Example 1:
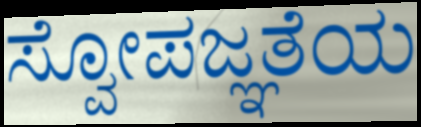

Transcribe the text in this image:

ಸ್ವೋಪಜ್ಞತೆಯ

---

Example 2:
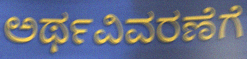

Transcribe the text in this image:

ಅರ್ಥವಿವರಣೆಗೆ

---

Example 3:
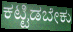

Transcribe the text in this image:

ಕಟ್ಟಿಡಬೇಕು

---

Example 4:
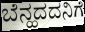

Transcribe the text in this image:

ಬೆನ್ಹದದನಿಗೆ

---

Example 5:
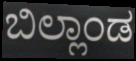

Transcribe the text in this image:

ಬಿಲ್ಲಾಂಡ